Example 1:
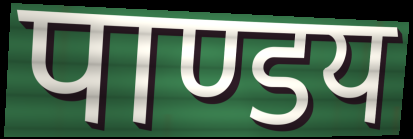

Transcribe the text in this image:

पाण्डय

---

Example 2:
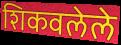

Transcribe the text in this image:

शिकवलेले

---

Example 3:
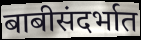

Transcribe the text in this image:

बाबीसंदर्भात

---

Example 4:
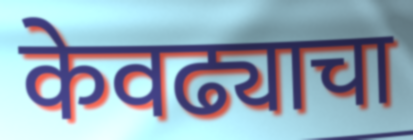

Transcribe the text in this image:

केवढ्याचा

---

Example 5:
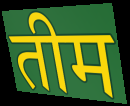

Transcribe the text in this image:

तीम